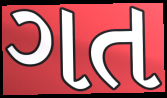
ગત